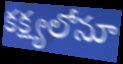
కక్ష్యలోనూ